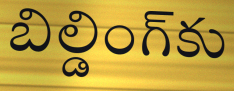
బిల్డింగ్‌కు